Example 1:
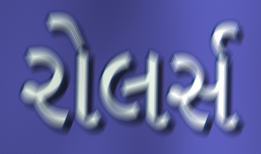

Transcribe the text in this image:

રોલર્સ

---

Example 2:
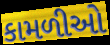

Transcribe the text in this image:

કામળીઓ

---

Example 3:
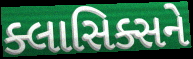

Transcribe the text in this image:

ક્લાસિક્સને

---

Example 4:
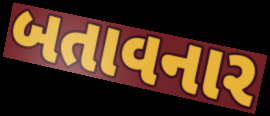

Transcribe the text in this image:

બતાવનાર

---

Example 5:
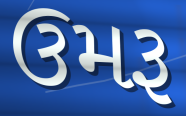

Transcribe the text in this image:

ઉમરૂ